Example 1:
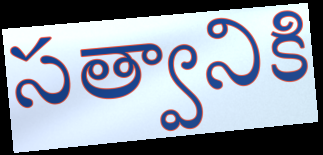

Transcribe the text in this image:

సత్వానికి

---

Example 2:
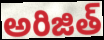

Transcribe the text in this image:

అరిజిత్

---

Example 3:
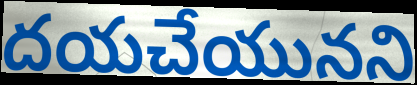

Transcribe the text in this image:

దయచేయునని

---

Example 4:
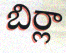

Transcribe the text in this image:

బిర్లా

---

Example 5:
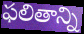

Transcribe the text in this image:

ఫలితాన్ని